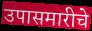
उपासमारीचे